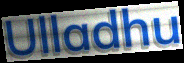
Ulladhu